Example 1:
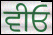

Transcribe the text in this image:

ਵੀਓ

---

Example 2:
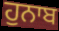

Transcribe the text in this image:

ਹੁਨਾਬ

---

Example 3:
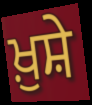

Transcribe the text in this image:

ਖ਼ੁਸ਼ੇ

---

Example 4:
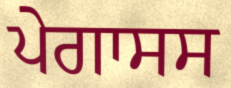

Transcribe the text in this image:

ਪੇਗਾਸਸ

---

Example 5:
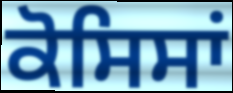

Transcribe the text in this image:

ਕੋਸਿਸਾਂ